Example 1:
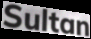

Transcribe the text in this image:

Sultan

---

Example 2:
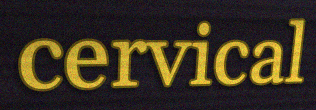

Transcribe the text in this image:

cervical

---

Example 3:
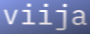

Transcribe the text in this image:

viija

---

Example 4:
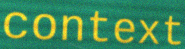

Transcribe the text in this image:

context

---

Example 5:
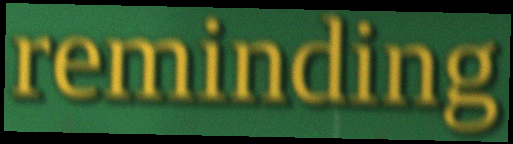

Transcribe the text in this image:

reminding